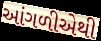
આંગળીએથી